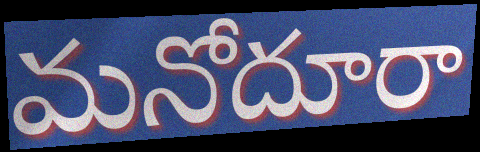
మనోదూరా